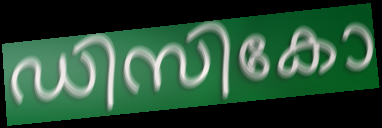
ഡിസികോ